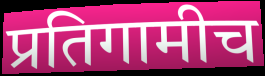
प्रतिगामीच